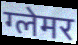
ग्लेमर